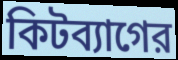
কিটব্যাগের